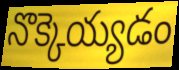
నొక్కెయ్యడం